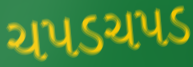
ચપડચપડ